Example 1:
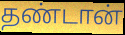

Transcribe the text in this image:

தண்டான்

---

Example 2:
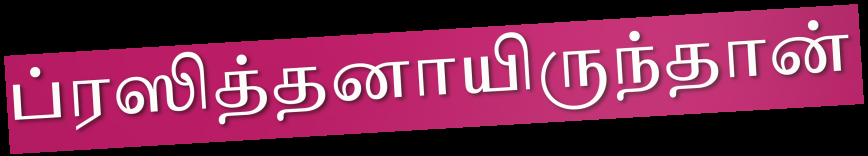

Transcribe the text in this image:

ப்ரஸித்தனாயிருந்தான்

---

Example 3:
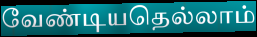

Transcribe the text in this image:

வேண்டியதெல்லாம்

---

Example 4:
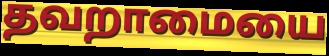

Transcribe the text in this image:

தவறாமையை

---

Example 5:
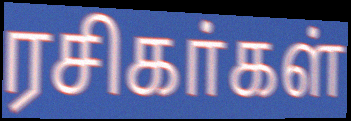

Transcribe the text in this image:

ரசிகர்கள்